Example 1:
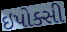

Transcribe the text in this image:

ઇપોક્સી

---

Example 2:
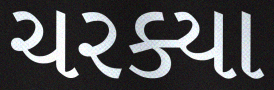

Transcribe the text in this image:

ચરક્યા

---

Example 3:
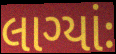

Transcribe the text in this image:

લાગ્યાંઃ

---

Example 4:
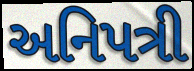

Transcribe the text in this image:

અનિપત્રી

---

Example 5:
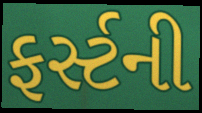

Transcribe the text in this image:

ફર્સ્ટની